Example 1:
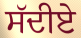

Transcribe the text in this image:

ਸੱਦੀਏ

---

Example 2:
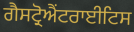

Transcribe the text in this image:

ਗੈਸਟ੍ਰੋਐਂਟਰਾਈਟਿਸ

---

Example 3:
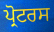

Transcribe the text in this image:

ਪ੍ਰੋਟਰਸ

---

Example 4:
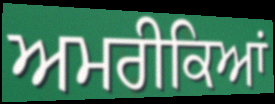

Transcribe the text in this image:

ਅਮਰੀਕਿਆਂ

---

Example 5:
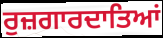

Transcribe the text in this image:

ਰੁਜ਼ਗਾਰਦਾਤਿਆਂ